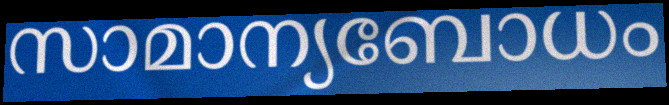
സാമാന്യബോധം